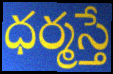
ధర్మస్తే